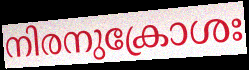
നിരനുക്രോശഃ